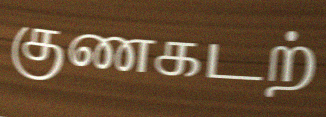
குணகடற்